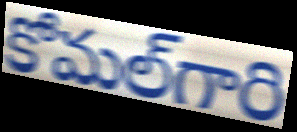
కోమల్‌గారి